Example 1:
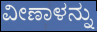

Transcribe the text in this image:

ವೀಣಾಳನ್ನು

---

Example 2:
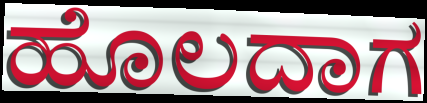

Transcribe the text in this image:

ಹೊಲದಾಗ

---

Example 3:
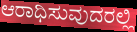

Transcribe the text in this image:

ಆರಾಧಿಸುವುದರಲ್ಲಿ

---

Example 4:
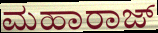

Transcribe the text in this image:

ಮಹಾರಾಜ್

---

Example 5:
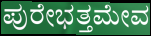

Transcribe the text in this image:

ಪುರೇಭತ್ತಮೇವ